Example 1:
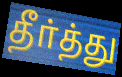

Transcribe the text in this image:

தீர்த்து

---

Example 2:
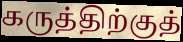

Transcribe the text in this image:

கருத்திற்குத்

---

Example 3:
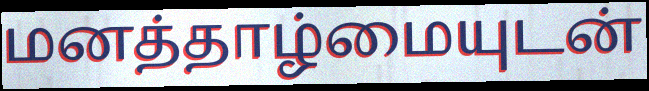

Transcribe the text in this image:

மனத்தாழ்மையுடன்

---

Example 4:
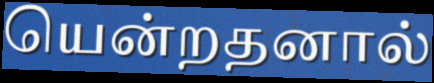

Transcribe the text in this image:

யென்றதனால்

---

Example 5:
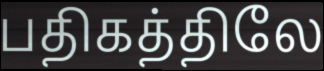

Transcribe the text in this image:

பதிகத்திலே